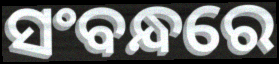
ସଂବନ୍ଧରେ